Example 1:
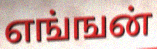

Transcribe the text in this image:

எங்ஙன்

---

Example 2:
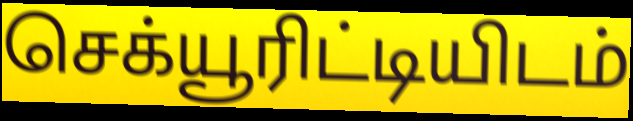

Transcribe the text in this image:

செக்யூரிட்டியிடம்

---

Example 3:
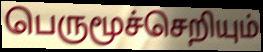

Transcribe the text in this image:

பெருமூச்செறியும்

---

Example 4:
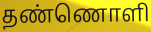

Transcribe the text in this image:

தண்ணொளி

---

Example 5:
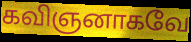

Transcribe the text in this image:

கவிஞனாகவே